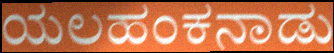
ಯಲಹಂಕನಾಡು